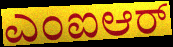
ಎಂಐಆರ್